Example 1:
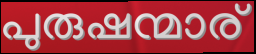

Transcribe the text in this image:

പുരുഷന്മാര്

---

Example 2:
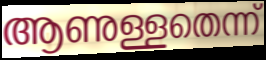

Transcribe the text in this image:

ആണുള്ളതെന്ന്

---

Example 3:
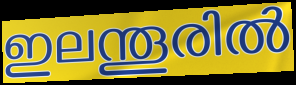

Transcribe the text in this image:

ഇലന്തൂരിൽ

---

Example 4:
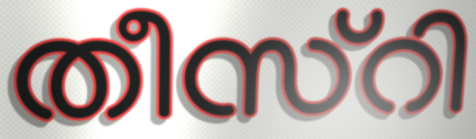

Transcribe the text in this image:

തീസ്റി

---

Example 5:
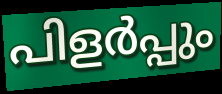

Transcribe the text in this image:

പിളർപ്പും